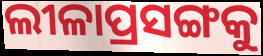
ଲୀଳାପ୍ରସଙ୍ଗକୁ